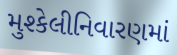
મુશ્કેલીનિવારણમાં